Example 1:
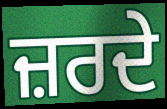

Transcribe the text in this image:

ਜ਼ਰਦੇ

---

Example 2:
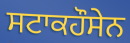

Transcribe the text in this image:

ਸਟਾਕਹੌਸੇਨ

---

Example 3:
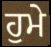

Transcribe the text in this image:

ਹੁਮੇ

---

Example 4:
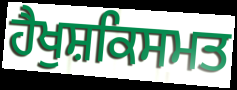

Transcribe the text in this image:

ਹੈਖੁਸ਼ਕਿਸਮਤ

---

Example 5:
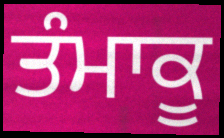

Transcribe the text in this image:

ਤੰਮਾਕੂ